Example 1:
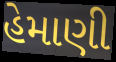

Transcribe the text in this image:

હેમાણી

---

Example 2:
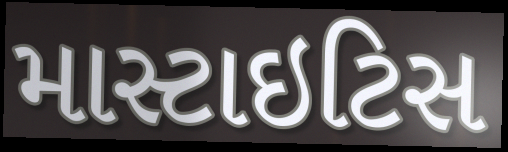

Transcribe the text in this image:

માસ્ટાઇટિસ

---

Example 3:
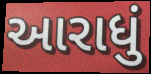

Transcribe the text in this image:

આરાધું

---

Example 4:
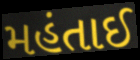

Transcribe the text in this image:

મહંતાઈ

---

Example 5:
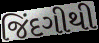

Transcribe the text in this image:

જિંદગીથી